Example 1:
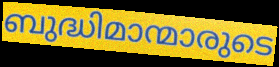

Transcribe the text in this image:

ബുദ്ധിമാന്മാരുടെ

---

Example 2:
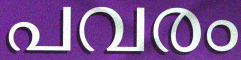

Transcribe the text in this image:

പവരം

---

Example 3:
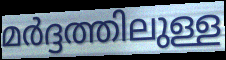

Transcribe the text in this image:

മർദ്ദത്തിലുള്ള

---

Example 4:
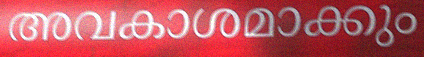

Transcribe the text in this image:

അവകാശമാക്കും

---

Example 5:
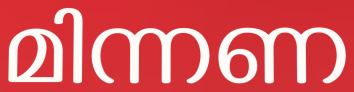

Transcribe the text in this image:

മിന്നണ